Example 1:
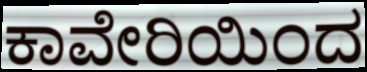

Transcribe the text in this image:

ಕಾವೇರಿಯಿಂದ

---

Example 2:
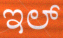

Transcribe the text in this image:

ಇಲ್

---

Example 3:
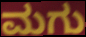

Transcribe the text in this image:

ಮಗು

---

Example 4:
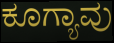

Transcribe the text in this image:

ಕೂಗ್ಯಾವು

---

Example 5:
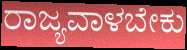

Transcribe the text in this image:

ರಾಜ್ಯವಾಳಬೇಕು